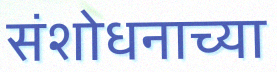
संशोधनाच्या